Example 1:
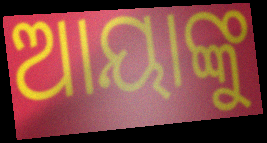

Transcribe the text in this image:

ଆୟାଙ୍କୁ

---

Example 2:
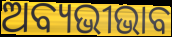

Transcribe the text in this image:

ଅବ୍ୟଭୀଭାବ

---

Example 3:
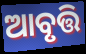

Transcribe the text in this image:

ଆବୃତ୍ତି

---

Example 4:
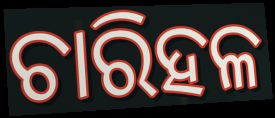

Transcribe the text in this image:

ଚାରିହଳ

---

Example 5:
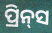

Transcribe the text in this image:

ପ୍ରିନ୍‍ସ